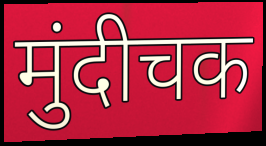
मुंदीचक